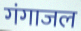
गंगाजल